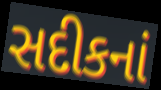
સદીકનાં